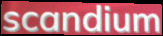
scandium